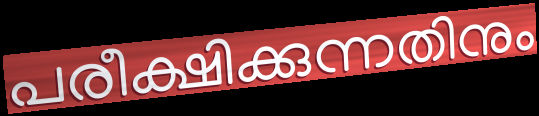
പരീക്ഷിക്കുന്നതിനും